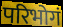
परिभोगं